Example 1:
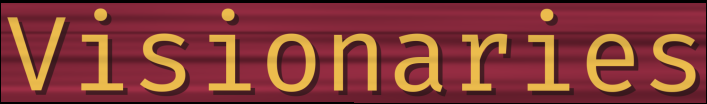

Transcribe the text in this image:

Visionaries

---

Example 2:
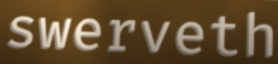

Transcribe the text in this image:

swerveth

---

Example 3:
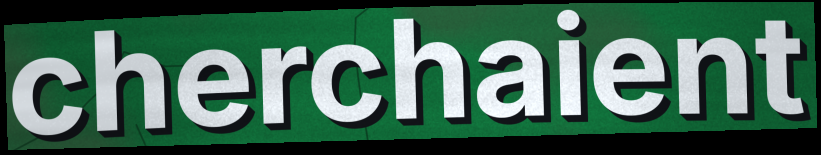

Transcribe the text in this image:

cherchaient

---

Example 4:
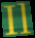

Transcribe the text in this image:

Il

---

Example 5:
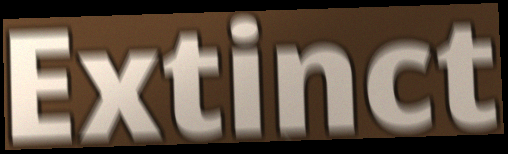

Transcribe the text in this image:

Extinct